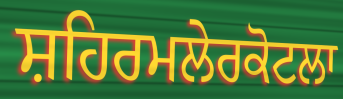
ਸ਼ਹਿਰਮਲੇਰਕੋਟਲਾ